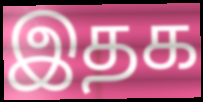
இதக